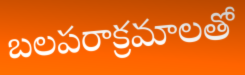
బలపరాక్రమాలతో